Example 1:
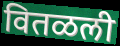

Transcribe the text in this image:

वितळली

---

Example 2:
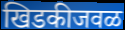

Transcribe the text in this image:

खिडकीजवळ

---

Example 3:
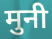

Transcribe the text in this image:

मुनी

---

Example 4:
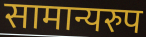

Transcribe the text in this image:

सामान्यरुप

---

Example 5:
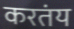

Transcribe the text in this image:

करतंय